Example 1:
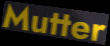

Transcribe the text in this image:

Mutter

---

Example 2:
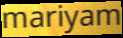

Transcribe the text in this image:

mariyam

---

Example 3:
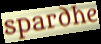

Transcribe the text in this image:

spardhe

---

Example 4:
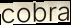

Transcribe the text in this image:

cobra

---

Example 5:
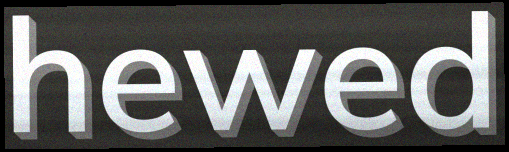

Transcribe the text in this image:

hewed